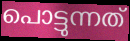
പൊട്ടുന്നത്